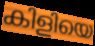
കിളിയെ